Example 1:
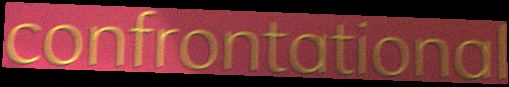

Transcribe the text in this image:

confrontational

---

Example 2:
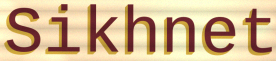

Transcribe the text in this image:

Sikhnet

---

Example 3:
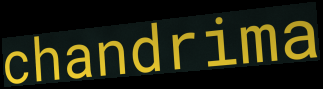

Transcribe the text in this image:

chandrima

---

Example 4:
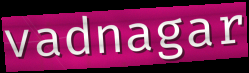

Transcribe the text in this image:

vadnagar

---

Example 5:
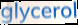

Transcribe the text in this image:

glycerol